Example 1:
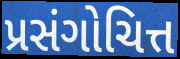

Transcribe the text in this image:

પ્રસંગોચિત્ત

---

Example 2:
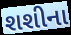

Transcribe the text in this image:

શશીના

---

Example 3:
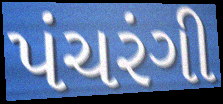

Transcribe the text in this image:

પંચરંગી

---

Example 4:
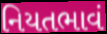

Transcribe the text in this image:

નિયતભાવં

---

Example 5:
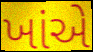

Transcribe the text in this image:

ખાંએ